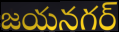
జయనగర్